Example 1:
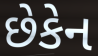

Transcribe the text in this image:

છેકેન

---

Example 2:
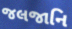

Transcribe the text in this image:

જલજાનિ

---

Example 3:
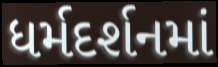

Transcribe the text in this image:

ધર્મદર્શનમાં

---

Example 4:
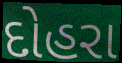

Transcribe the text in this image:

દોહરા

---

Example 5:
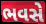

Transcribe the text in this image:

ભવસે